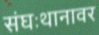
संघःथानावर